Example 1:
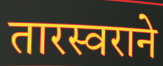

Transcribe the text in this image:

तारस्वराने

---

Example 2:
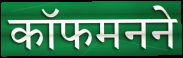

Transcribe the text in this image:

कॉफमनने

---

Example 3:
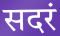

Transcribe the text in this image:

सदरं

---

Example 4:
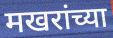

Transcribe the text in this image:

मखरांच्या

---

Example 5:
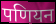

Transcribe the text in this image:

पणियन